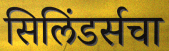
सिलिंडर्सचा